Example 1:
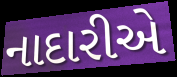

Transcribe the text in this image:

નાદારીએ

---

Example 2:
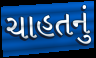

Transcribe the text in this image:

ચાહતનું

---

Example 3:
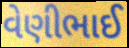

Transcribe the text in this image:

વેણીભાઈ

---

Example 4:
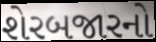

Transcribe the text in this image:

શેરબજારનો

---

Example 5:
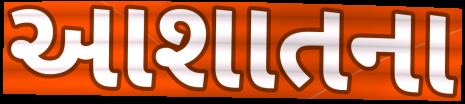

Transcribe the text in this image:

આશાતના